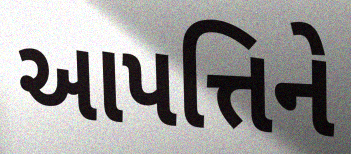
આપત્તિને